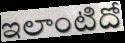
ఇలాంటిదో